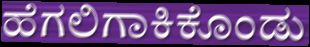
ಹೆಗಲಿಗಾಕಿಕೊಂಡು